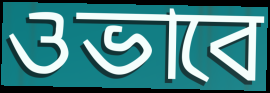
ওভাবে